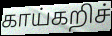
காய்கறிச்